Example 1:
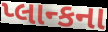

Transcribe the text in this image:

પ્લાન્કના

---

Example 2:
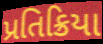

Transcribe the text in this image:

પ્રતિક્રિયા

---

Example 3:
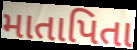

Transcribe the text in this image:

માતાપિતા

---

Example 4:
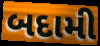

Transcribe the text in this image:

બદામી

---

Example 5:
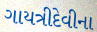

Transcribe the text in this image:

ગાયત્રીદેવીના